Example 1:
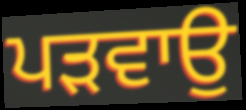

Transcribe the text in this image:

ਪੜਵਾਉ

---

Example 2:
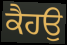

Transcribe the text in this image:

ਕੈਹਉ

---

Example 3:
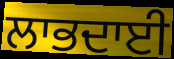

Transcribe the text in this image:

ਲਾਭਦਾਈ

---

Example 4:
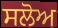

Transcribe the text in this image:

ਸਲੋਅ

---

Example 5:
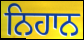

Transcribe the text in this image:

ਨਿਹਾਨ